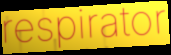
respirator